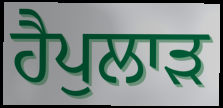
ਹੈਪੁਲਾੜ